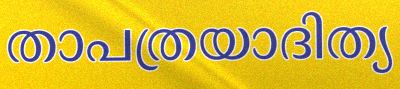
താപത്രയാദിത്യ